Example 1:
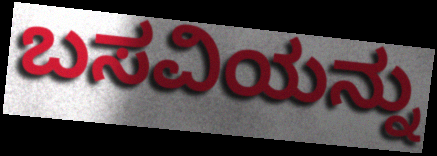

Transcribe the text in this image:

ಬಸವಿಯನ್ನು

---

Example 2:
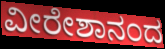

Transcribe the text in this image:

ವೀರೇಶಾನಂದ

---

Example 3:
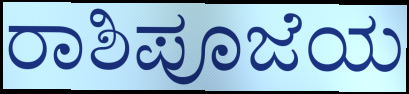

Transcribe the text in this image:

ರಾಶಿಪೂಜೆಯ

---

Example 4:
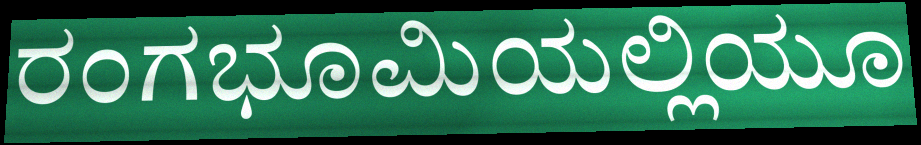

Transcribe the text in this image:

ರಂಗಭೂಮಿಯಲ್ಲಿಯೂ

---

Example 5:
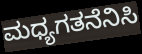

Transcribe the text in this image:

ಮಧ್ಯಗತನೆನಿಸಿ